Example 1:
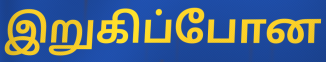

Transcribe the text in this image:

இறுகிப்போன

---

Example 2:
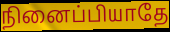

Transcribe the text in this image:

நினைப்பியாதே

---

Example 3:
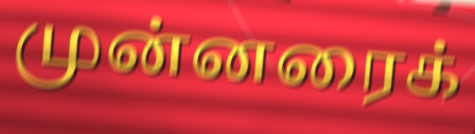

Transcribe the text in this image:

முன்னரைக்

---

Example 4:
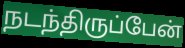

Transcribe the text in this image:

நடந்திருப்பேன்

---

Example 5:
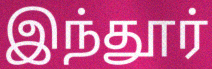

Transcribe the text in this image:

இந்தூர்